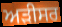
ਅੜੀਸਰ